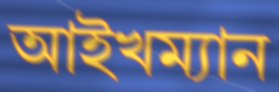
আইখম্যান